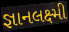
જ્ઞાનલક્ષ્મી